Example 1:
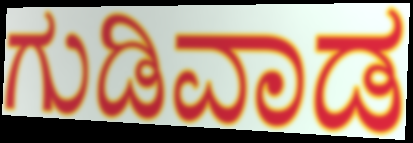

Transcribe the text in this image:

ಗುಡಿವಾಡ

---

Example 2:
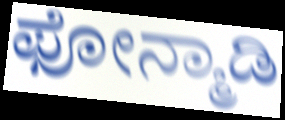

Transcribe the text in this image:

ಫೋನ್ಮಾಡಿ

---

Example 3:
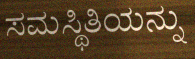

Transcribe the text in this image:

ಸಮಸ್ಥಿತಿಯನ್ನು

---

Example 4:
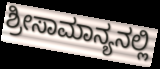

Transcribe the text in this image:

ಶ್ರೀಸಾಮಾನ್ಯನಲ್ಲಿ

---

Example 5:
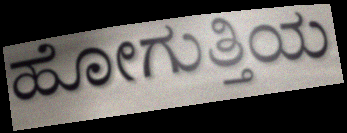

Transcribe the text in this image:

ಹೋಗುತ್ತಿಯ